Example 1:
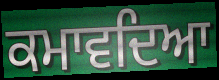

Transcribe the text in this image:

ਕਮਾਵਦਿਆ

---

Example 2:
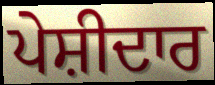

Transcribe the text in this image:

ਪੇਸ਼ੀਦਾਰ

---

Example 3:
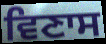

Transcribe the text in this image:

ਵਿਣਾਸ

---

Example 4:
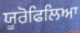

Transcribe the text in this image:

ਯੂਰੋਫਿਲਿਆ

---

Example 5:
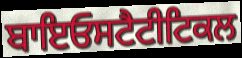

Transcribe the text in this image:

ਬਾਇਓਸਟੈਟੀਟਿਕਲ